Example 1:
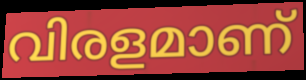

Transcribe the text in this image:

വിരളമാണ്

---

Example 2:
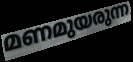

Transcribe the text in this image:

മണമുയരുന്ന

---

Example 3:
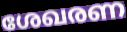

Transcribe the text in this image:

ശേഖരണ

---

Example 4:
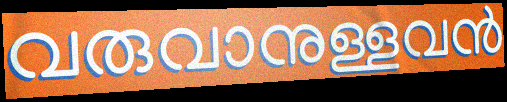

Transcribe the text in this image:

വരുവാനുള്ളവൻ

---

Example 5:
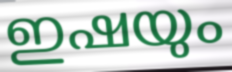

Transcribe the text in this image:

ഇഷയും